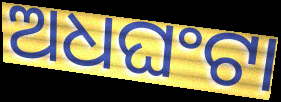
ଅଧଘଂଟା